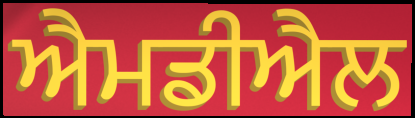
ਐਮਡੀਐਲ